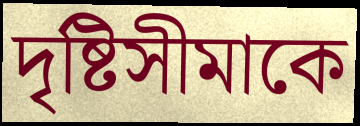
দৃষ্টিসীমাকে